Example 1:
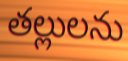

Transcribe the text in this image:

తల్లులను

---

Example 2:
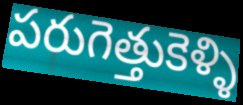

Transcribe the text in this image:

పరుగెత్తుకెళ్ళి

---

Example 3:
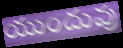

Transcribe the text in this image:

యుందువు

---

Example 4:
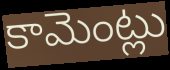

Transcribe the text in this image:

కామెంట్లు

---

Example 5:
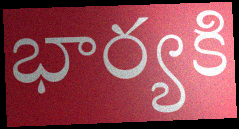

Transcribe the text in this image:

భార్యకి